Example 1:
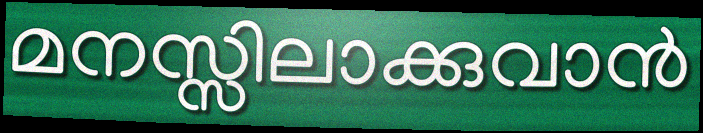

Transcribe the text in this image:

മനസ്സിലാക്കുവാൻ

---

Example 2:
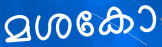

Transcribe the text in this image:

മശകോ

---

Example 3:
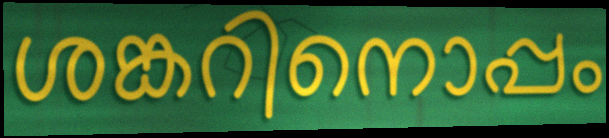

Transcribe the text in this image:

ശങ്കറിനൊപ്പം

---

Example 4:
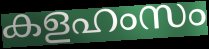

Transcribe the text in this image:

കളഹംസം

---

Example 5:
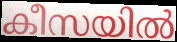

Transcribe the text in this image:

കീസയിൽ